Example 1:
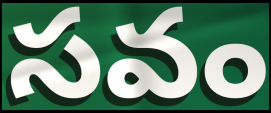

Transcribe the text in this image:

సవం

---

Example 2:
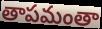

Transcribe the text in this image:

తాపమంతా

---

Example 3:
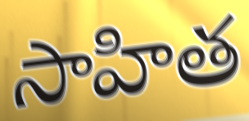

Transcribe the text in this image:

సాహిత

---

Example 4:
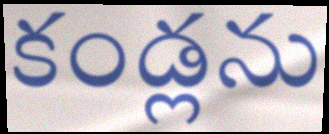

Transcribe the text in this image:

కండ్లను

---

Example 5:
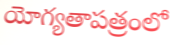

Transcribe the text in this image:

యోగ్యతాపత్రంలో